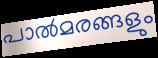
പാൽമരങ്ങളും